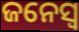
ଜନେସ୍ୱ